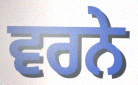
ਵਰਨੇ